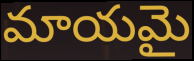
మాయమై